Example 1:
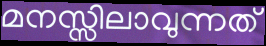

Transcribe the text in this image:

മനസ്സിലാവുന്നത്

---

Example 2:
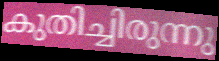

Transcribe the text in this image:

കുതിച്ചിരുന്നു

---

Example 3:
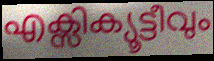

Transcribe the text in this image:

എക്സിക്യൂട്ടീവും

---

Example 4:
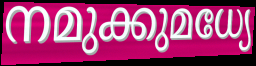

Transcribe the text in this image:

നമുക്കുമധ്യേ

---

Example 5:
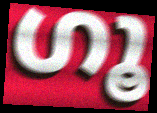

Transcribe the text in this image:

ഗൂ